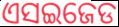
ଏସଇଜେଡ